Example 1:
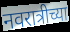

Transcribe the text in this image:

नवरात्रीच्या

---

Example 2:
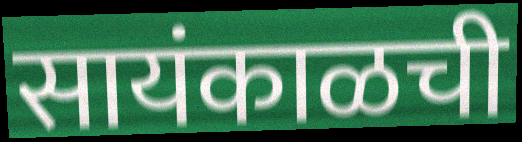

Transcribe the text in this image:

सायंकाळची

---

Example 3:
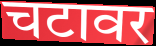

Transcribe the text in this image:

चटावर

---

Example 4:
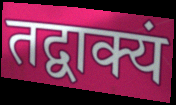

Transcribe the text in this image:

तद्वाक्यं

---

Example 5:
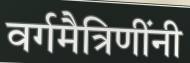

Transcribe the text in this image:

वर्गमैत्रिणींनी